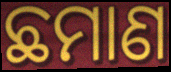
ଛମାଣ